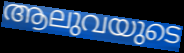
ആലുവയുടെ